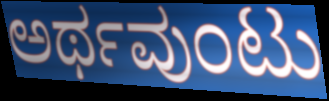
ಅರ್ಥವುಂಟು